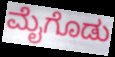
ಮೈಗೊಡು